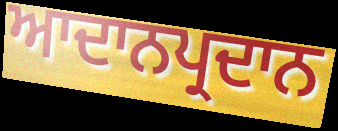
ਆਦਾਨਪ੍ਰਦਾਨ